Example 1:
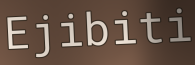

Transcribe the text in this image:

Ejibiti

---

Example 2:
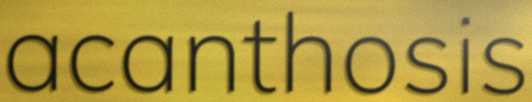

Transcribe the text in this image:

acanthosis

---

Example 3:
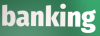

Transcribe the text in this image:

banking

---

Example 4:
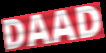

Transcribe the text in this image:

DAAD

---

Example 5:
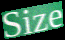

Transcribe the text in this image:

Size